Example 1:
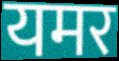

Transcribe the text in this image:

यमर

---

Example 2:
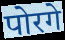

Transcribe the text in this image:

पोरगे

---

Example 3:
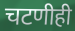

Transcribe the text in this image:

चटणीही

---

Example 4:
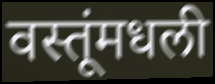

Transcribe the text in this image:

वस्तूंमधली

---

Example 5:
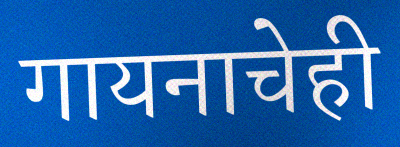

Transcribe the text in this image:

गायनाचेही